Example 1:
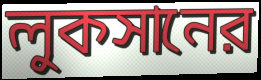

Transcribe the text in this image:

লুকসানের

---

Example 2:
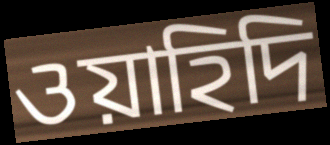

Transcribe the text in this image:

ওয়াহিদি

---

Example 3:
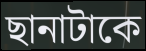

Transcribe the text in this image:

ছানাটাকে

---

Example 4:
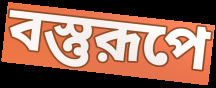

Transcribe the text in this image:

বস্তুরূপে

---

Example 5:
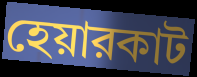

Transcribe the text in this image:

হেয়ারকাট